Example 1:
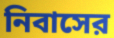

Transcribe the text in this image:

নিবাসের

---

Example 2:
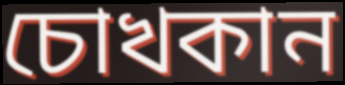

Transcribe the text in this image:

চোখকান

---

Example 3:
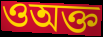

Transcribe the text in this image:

ওঅক্ত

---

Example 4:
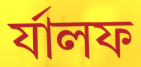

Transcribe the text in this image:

র্যালফ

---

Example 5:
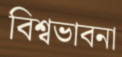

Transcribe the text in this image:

বিশ্বভাবনা